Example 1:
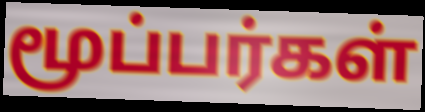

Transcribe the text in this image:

மூப்பர்கள்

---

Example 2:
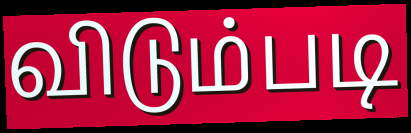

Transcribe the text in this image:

விடும்படி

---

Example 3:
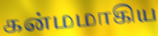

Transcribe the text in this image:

கன்மமாகிய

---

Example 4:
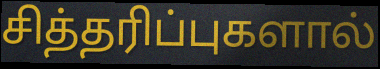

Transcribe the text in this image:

சித்தரிப்புகளால்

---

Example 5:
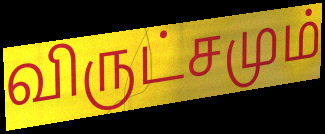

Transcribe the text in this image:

விருட்சமும்